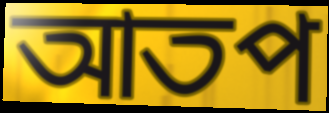
আতপ